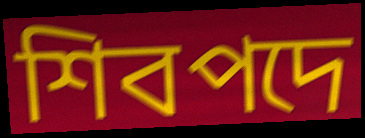
শিবপদে